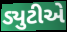
ડ્યુટીએ